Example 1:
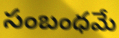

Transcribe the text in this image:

సంబంధమే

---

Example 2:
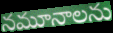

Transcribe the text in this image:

నమూనాలను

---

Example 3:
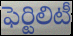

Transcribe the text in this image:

ఫెర్టిలిటీ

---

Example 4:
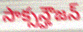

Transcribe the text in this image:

సాక్సన్హౌజన్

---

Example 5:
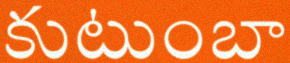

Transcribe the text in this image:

కుటుంబా